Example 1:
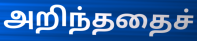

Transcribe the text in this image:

அறிந்ததைச்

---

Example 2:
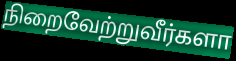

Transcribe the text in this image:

நிறைவேற்றுவீர்களா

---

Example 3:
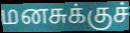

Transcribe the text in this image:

மனசுக்குச்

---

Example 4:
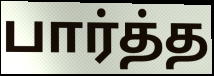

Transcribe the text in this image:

பார்த்த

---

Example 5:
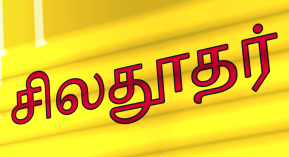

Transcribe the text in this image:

சிலதூதர்